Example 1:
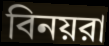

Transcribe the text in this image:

বিনয়রা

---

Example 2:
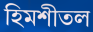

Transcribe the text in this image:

হিমশীতল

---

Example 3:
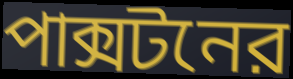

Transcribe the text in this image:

পাক্সটনের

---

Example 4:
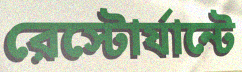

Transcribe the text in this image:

রেস্টোর্যান্টে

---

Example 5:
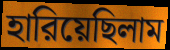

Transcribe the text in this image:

হারিয়েছিলাম